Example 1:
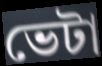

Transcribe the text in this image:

ভেটা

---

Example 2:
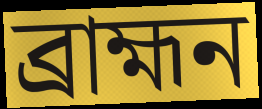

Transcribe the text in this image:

ব্ৰাহ্মন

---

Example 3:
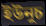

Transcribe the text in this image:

ইউনুচ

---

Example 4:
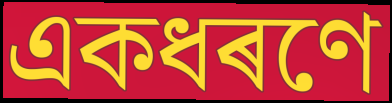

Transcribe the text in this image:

একধৰণে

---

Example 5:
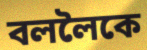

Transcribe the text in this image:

বললৈকে